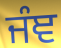
ਜੰਞ